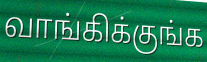
வாங்கிக்குங்க